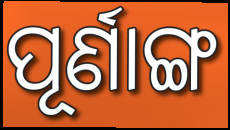
ପୂର୍ଣାଙ୍ଗ